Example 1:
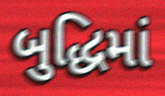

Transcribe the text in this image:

બુદ્ધિમાં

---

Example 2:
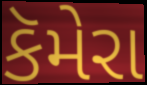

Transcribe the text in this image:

કૅમેરા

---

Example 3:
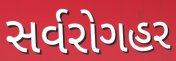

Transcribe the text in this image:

સર્વરોગહર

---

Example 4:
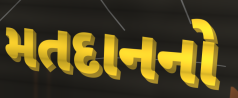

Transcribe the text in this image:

મતદાનનો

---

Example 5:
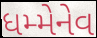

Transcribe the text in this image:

ધમ્મેનેવ